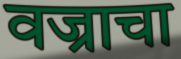
वज्राचा